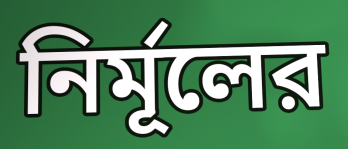
নির্মূলের